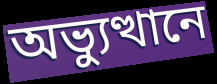
অভ্যুত্থানে